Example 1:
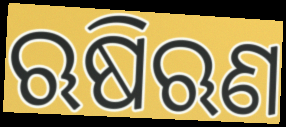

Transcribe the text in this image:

ଋଷିଋଣ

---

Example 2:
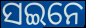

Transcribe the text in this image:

ସଇନେ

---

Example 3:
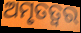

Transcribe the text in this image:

ଅମୃତତ୍ଵର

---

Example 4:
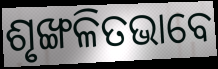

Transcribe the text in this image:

ଶୃଙ୍ଖଳିତଭାବେ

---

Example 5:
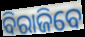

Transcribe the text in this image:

ବିରାଜିବେ